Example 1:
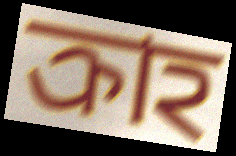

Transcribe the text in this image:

ক্রাহ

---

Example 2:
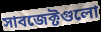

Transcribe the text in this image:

সাবজেক্টগুলো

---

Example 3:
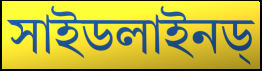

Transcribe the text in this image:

সাইডলাইনড্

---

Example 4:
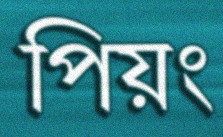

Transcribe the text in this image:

পিয়ং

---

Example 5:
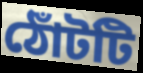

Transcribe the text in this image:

ঠোঁটটি